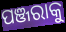
ପଞ୍ଜରାକୁ